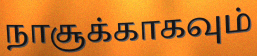
நாசூக்காகவும்